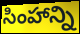
సింహాన్ని